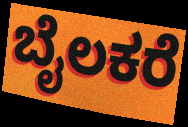
ಬೈಲಕರೆ